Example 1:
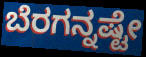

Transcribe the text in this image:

ಬೆರಗನ್ನಷ್ಟೇ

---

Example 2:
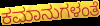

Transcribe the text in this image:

ಕಮಾನುಗಳಂತೆ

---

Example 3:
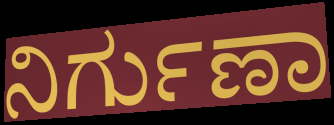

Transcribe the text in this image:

ನಿರ್ಗುಣಾ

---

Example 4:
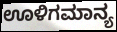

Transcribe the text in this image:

ಊಳಿಗಮಾನ್ಯ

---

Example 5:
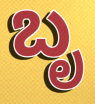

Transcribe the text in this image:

ಬೃ